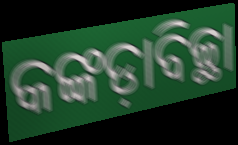
କଙ୍କଡ଼ାବିଚ୍ଛା